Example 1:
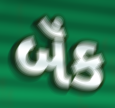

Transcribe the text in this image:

બૅંક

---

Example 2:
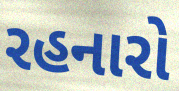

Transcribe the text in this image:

રહનારો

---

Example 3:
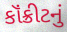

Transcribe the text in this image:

કૉંક્રીટનું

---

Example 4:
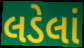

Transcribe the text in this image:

લડેલાં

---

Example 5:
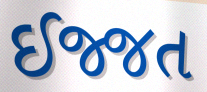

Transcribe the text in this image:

ઈજ્જત